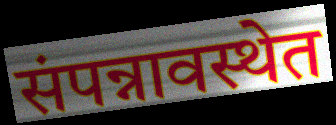
संपन्नावस्थेत